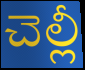
చెల్లీ